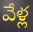
వేళ్ల